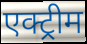
एक्ट्रीम